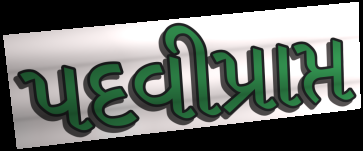
પદવીપ્રાપ્ત